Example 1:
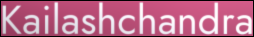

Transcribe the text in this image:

Kailashchandra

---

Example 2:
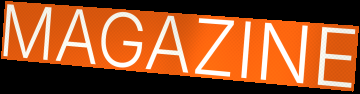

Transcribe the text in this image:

MAGAZINE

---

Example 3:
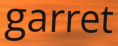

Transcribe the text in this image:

garret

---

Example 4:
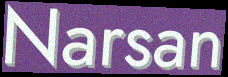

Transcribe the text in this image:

Narsan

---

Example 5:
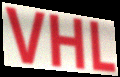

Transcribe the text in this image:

VHL